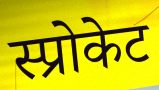
स्प्रोकेट